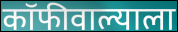
कॉफीवाल्याला